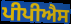
ਪੀਪੀਐਸ